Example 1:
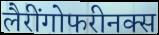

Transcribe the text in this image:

लैरींगोफरीनक्स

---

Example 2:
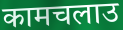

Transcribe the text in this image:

कामचलाउ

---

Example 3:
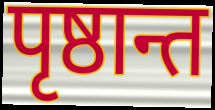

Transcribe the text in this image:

पृष्ठान्त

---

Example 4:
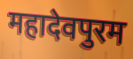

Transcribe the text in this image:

महादेवपुरम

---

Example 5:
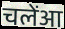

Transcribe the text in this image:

चलेंआ